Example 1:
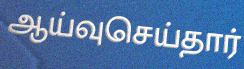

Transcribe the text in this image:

ஆய்வுசெய்தார்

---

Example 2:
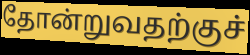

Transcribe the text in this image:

தோன்றுவதற்குச்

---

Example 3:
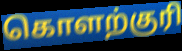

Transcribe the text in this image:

கொளற்குரி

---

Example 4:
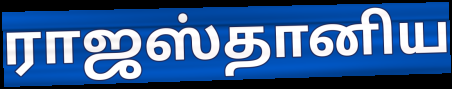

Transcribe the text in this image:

ராஜஸ்தானிய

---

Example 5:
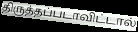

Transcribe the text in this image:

திருத்தப்படாவிட்டால்